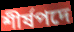
শীর্ষপদে